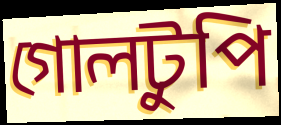
গোলটুপি